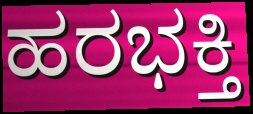
ಹರಭಕ್ತಿ